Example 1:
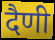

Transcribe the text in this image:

दैणी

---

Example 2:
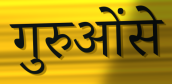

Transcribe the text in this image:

गुरुओंसे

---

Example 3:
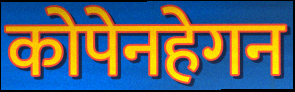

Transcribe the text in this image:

कोपेनहेगन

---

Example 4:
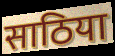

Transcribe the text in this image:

साठिया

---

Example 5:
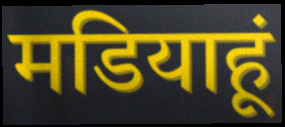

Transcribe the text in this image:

मडियाहूं